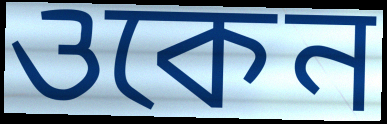
ওকেন